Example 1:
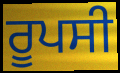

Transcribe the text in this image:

ਰੂਪਸੀ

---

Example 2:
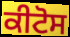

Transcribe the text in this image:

ਕੀਟੋਸ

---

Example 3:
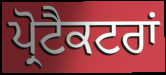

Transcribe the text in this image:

ਪ੍ਰੋਟੈਕਟਰਾਂ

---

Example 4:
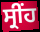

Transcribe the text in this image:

ਸ੍ਰੀਂਹ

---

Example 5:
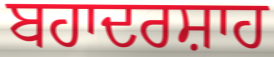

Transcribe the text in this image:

ਬਹਾਦਰਸ਼ਾਹ